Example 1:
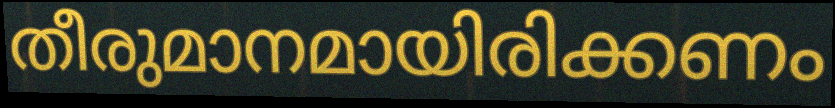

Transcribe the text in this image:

തീരുമാനമായിരിക്കണം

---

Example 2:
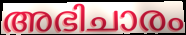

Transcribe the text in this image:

അഭിചാരം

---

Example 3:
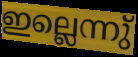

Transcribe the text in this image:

ഇല്ലെന്നു്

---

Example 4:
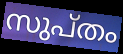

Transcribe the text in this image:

സുപ്തം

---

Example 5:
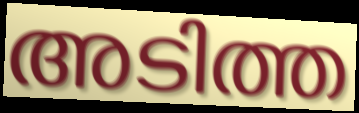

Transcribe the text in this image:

അടിത്ത